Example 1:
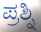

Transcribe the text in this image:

ಪ್ರಶ್ನಿ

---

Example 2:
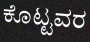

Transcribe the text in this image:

ಕೊಟ್ಟವರ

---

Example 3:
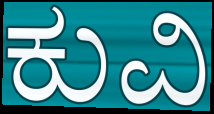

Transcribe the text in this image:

ಕುವಿ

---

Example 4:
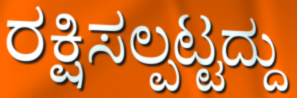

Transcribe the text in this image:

ರಕ್ಷಿಸಲ್ಪಟ್ಟದ್ದು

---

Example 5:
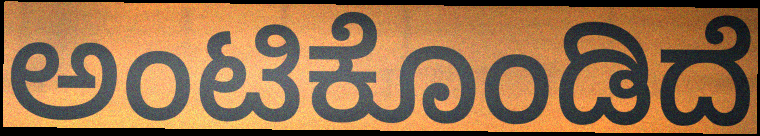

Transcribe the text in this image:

ಅಂಟಿಕೊಂಡಿದೆ